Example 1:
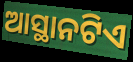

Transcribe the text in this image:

ଆସ୍ଥାନଟିଏ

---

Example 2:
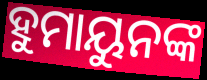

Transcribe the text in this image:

ହୁମାୟୁନଙ୍କ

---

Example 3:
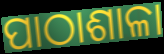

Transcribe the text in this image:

ପାଠାଶାଳା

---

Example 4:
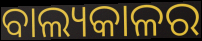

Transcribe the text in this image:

ବାଲ୍ୟକାଳର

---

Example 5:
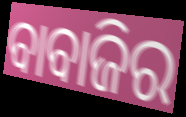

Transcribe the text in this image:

ବାବାଜିର